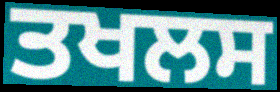
ਤਖਲਸ